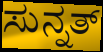
ಸುನ್ನತ್